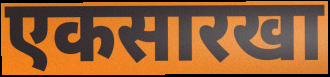
एकसारखा